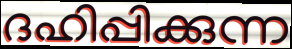
ദഹിപ്പിക്കുന്ന